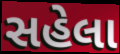
સહેલા